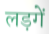
लड़गें